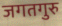
जगतगुरु